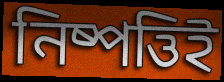
নিষ্পত্তিই